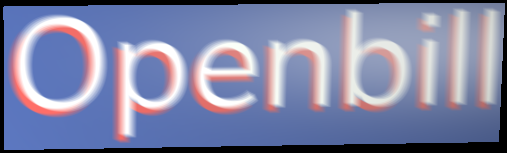
Openbill